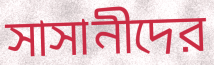
সাসানীদের